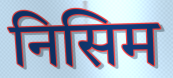
निसिम